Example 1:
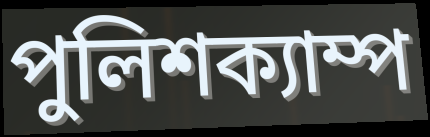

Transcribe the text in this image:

পুলিশক্যাম্প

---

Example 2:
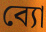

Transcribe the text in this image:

ব্যো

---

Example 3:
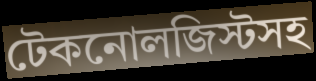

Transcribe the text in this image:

টেকনোলজিস্টসহ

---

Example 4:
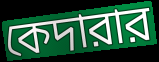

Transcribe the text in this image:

কেদারার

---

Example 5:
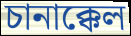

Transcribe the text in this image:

চানাক্কেল